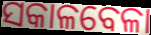
ସକାଳବେଳା